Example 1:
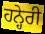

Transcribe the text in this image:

ਹਨ੍ਹੇਰੀ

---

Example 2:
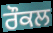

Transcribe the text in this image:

ਰੌਕਲ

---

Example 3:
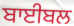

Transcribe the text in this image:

ਬਾਈਬਲ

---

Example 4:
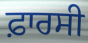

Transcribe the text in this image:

ਫ਼ਾਰਸੀ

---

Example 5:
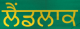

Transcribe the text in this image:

ਲੈਂਡਲਾਕ